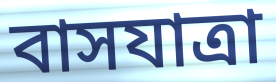
বাসযাত্রা